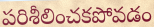
పరిశీలించకపోవడం